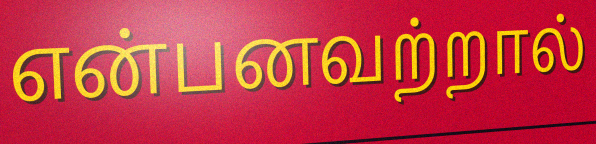
என்பனவற்றால்